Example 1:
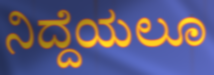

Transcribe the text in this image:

ನಿದ್ದೆಯಲೂ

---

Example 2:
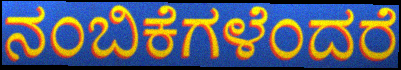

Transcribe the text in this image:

ನಂಬಿಕೆಗಳೆಂದರೆ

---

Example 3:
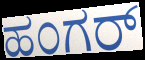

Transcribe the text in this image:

ಹಂಗರ್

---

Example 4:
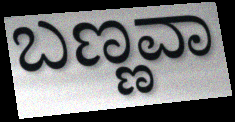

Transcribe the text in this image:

ಬಣ್ಣವಾ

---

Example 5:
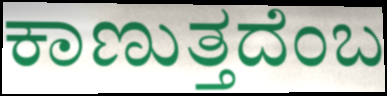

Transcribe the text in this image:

ಕಾಣುತ್ತದೆಂಬ